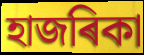
হাজৰিকা